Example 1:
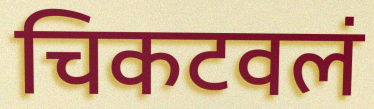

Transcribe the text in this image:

चिकटवलं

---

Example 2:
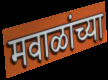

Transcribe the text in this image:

मवाळांच्या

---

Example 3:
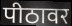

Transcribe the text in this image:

पीठावर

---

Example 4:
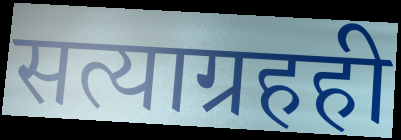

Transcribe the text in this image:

सत्याग्रहही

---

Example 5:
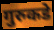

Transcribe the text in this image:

गुरुकडे